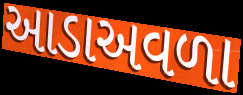
આડાઅવળા